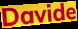
Davide